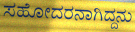
ಸಹೋದರನಾಗಿದ್ದನು